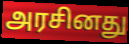
அரசினது